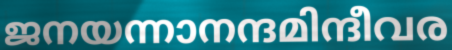
ജനയന്നാനന്ദമിന്ദീവര